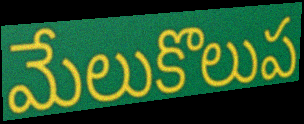
మేలుకొలుప